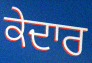
ਕੇਦਾਰ